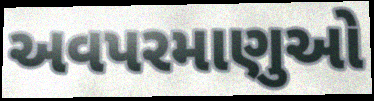
અવપરમાણુઓ